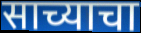
साच्याचा